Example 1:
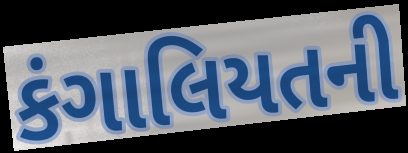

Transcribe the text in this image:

કંગાલિયતની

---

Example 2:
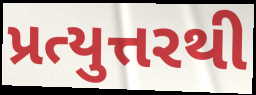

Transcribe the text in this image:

પ્રત્યુત્તરથી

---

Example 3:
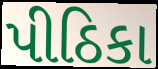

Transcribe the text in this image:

પીઠિકા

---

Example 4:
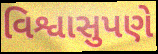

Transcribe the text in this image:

વિશ્વાસુપણે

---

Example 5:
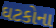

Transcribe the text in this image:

ઘટકોના